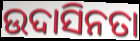
ଉଦାସିନତା